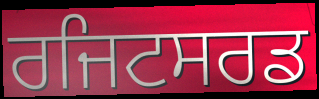
ਰਜਿਟਸਰਡ